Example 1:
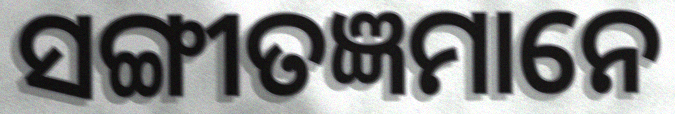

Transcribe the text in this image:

ସଙ୍ଗୀତଜ୍ଞମାନେ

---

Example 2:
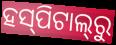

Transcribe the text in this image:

ହସ୍‌ପିଟାଲ୍‌ରୁ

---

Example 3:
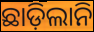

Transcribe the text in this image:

ଛାଡ଼ିଲାନି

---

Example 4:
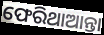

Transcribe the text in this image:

ଫେରିଥାଆନ୍ତା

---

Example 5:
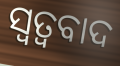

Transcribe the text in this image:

ସ୍ୱତ୍ୱବାଦ